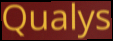
Qualys